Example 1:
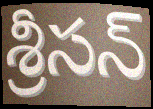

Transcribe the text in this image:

శ్రీసన్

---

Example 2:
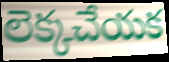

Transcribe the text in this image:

లెక్కచేయక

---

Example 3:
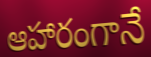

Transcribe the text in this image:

ఆహారంగానే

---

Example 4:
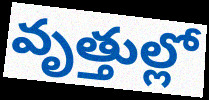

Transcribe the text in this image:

వృత్తుల్లో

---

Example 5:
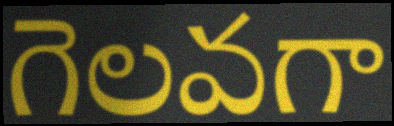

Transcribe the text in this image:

గెలవగా